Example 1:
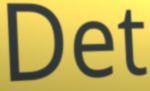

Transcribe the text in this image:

Det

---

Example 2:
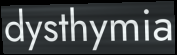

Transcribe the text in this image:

dysthymia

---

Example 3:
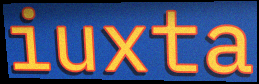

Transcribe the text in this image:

iuxta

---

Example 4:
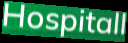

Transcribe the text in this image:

Hospitall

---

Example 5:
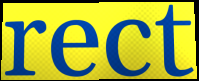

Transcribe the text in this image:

rect